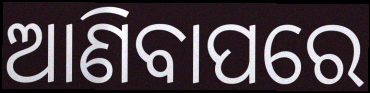
ଆଣିବାପରେ